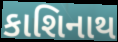
કાશિનાથ